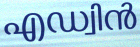
എഡ്വിൻ